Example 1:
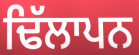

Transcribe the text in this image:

ਢਿੱਲਾਪਨ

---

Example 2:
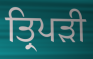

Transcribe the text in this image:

ਤ੍ਰਿਪਡ਼ੀ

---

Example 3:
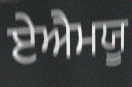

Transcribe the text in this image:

ਏਐਮਯੂ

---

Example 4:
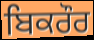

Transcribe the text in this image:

ਬਿਕਰੌਰ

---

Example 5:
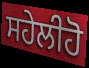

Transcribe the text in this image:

ਸਹੇਲੀਹੋ